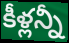
కీళ్లన్నీ